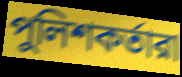
পুলিশকর্তারা